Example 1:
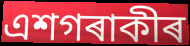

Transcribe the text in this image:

এশগৰাকীৰ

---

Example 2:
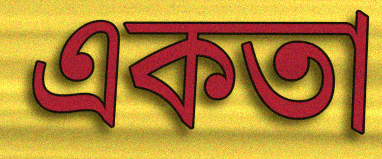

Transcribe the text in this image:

একতা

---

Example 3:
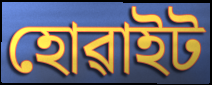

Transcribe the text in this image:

হোৱাইট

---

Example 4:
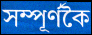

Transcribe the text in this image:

সম্পূৰ্ণকৈ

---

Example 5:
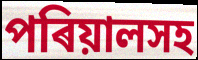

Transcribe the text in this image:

পৰিয়ালসহ